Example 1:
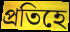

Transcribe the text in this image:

প্ৰতিহে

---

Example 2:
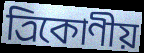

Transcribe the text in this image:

ত্ৰিকোণীয়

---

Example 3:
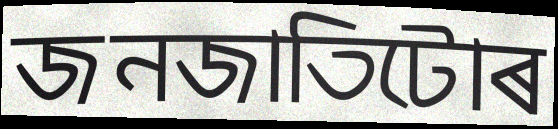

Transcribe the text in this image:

জনজাতিটোৰ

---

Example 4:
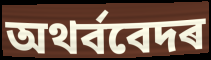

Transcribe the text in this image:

অথৰ্ববেদৰ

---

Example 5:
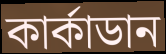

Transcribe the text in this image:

কাৰ্কাডান